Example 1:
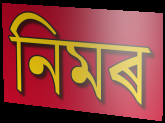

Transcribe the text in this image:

নিমৰ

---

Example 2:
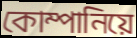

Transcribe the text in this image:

কোম্পানিয়ে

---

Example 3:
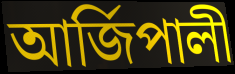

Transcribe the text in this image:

আৰ্জিপালী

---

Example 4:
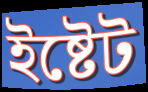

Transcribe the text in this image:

ইষ্টেট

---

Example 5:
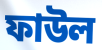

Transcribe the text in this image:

ফাউল